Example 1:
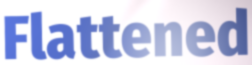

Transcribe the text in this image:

Flattened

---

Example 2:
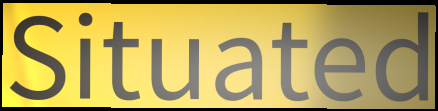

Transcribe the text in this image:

Situated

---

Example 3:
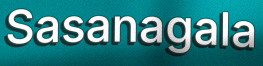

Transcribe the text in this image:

Sasanagala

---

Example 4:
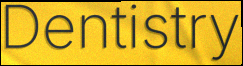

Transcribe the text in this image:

Dentistry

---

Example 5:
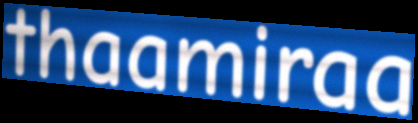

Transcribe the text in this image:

thaamiraa